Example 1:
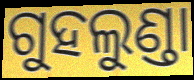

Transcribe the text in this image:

ଗୁହଲୁଣ୍ଡା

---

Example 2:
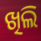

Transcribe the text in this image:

ଖିଲି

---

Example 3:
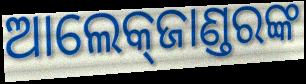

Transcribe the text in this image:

ଆଲେକ୍‌ଜାଣ୍ଡରଙ୍କ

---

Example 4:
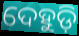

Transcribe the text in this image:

ଦେହୁଡ଼ି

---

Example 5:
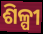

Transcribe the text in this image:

ଶିଳ୍ପୀ